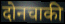
दोनचाकी